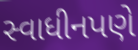
સ્વાધીનપણે